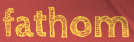
fathom